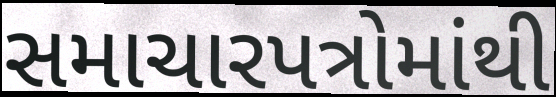
સમાચારપત્રોમાંથી